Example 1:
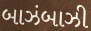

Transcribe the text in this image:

બાઝંબાઝી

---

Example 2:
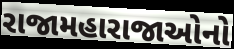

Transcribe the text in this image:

રાજામહારાજાઓનો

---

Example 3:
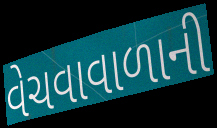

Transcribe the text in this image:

વેચવાવાળાની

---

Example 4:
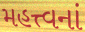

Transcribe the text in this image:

મહત્ત્વનાં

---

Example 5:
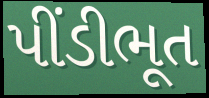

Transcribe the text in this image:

પીંડીભૂત